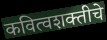
कवित्वशक्तीचे